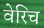
वेरिच